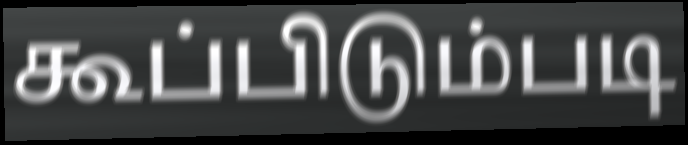
கூப்பிடும்படி